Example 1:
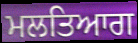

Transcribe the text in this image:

ਮਲਤਿਆਗ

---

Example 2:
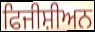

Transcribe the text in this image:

ਫਿਜੀਸ਼ੀਅਨ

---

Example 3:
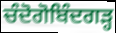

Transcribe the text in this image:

ਚੰਦੋਗੋਬਿੰਦਗੜ੍ਹ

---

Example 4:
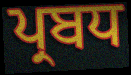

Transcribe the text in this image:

ਪ੍ਰਬਧ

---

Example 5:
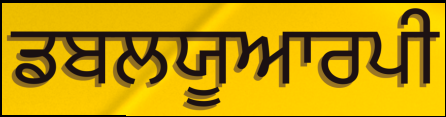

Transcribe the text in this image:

ਡਬਲਯੂਆਰਪੀ